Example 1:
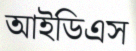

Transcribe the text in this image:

আইডিএস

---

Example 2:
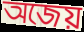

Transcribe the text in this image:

অজেয়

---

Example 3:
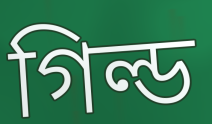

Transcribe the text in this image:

গিল্ড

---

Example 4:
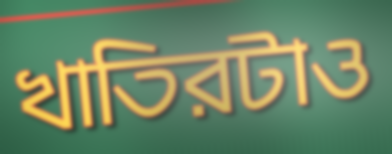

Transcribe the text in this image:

খাতিরটাও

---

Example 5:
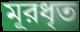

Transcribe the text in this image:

মূরধৃত